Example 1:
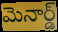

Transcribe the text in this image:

మెనార్డ్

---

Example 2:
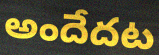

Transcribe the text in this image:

అందేదట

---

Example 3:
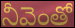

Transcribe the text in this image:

నీవెంతో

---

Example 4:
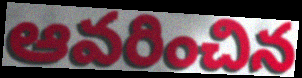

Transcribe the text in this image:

ఆవరించిన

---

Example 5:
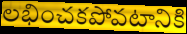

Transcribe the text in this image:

లభించకపోవటానికి